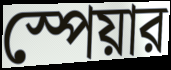
স্পেয়ার